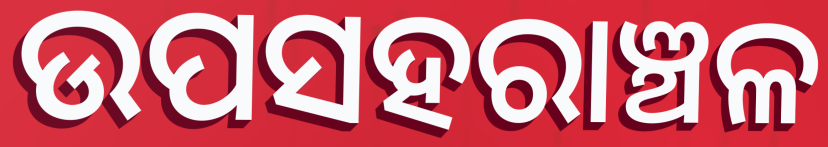
ଉପସହରାଞ୍ଚଳ